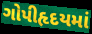
ગોપીહૃદયમાં